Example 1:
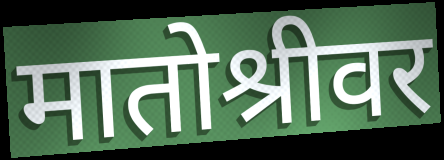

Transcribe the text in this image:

मातोश्रीवर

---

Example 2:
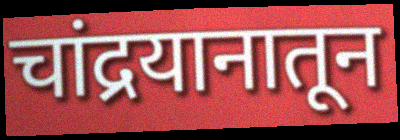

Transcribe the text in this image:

चांद्रयानातून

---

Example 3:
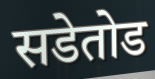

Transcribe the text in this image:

सडेतोड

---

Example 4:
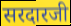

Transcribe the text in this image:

सरदारजी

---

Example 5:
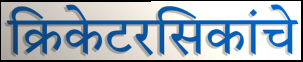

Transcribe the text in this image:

क्रिकेटरसिकांचे